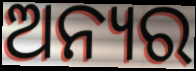
ଅନ୍ୟର